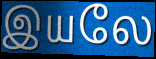
இயலே